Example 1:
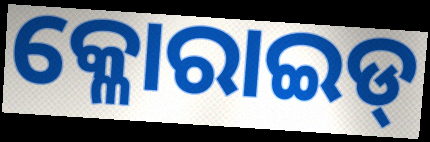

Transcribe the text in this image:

କ୍ଳୋରାଇଡ୍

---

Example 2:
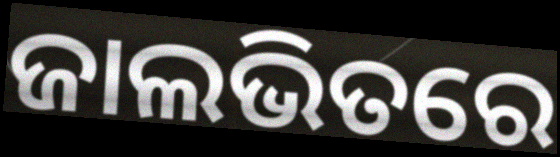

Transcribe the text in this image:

ଜାଲଭିତରେ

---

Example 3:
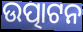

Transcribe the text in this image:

ଉତ୍ପାଟନ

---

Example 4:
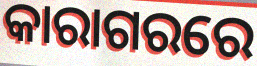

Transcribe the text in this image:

କାରାଗରରେ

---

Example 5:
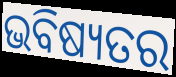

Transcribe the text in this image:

ଭବିଷ୍ୟତର